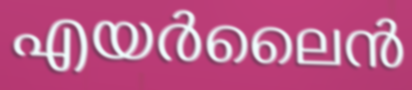
എയർലൈൻ